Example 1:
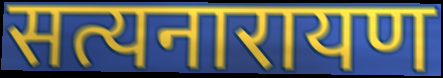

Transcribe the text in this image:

सत्यनारायण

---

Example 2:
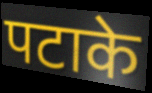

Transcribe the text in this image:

पटाके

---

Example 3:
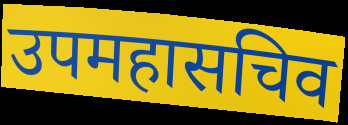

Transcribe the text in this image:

उपमहासचिव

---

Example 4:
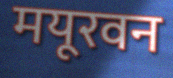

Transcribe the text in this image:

मयूरवन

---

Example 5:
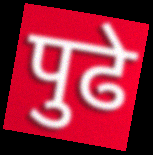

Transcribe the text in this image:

पुढे